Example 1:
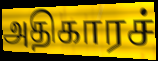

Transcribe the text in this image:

அதிகாரச்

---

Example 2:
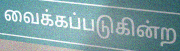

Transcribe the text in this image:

வைக்கப்படுகின்ற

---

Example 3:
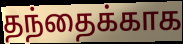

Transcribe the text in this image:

தந்தைக்காக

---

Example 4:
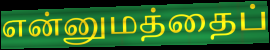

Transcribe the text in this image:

என்னுமத்தைப்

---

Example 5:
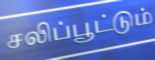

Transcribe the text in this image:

சலிப்பூட்டும்